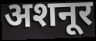
अशनूर